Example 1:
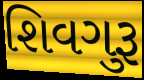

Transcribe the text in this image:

શિવગુરૂ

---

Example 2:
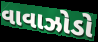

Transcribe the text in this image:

વાવાઝોડો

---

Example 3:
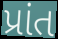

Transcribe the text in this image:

પ્રાંત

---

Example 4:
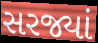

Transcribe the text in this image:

સરજ્યાં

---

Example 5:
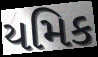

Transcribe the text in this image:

યમિક